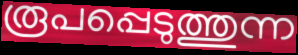
രൂപപ്പെടുത്തുന്ന